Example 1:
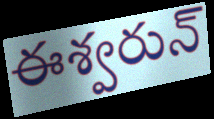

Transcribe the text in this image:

ఈశ్వరున్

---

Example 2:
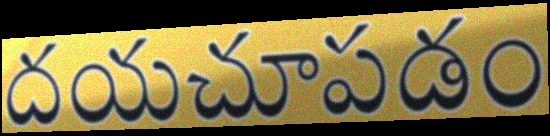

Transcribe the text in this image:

దయచూపడం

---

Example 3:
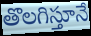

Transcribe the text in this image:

తొలగిస్తూనే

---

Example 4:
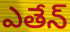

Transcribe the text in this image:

ఎతేన్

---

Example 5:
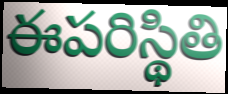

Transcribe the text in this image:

ఈపరిస్థితి